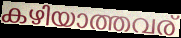
കഴിയാത്തവര്